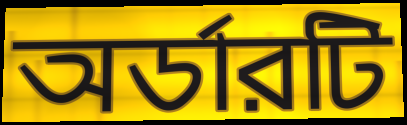
অর্ডারটি